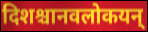
दिशश्चानवलोकयन्